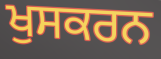
ਖੁਸਕਰਨ